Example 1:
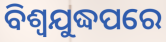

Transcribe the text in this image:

ବିଶ୍ୱଯୁଦ୍ଧପରେ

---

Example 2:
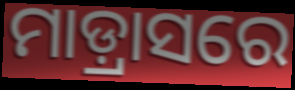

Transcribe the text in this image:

ମାଡ଼୍ରାସରେ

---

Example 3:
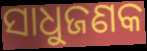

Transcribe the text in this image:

ସାଧୁଜଣକ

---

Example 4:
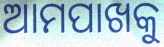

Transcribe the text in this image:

ଆମପାଖକୁ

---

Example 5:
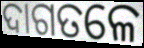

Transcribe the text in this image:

ଦାଗତଳେ